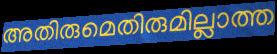
അതിരുമെതിരുമില്ലാത്ത